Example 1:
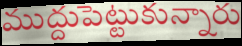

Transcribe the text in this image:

ముద్దుపెట్టుకున్నారు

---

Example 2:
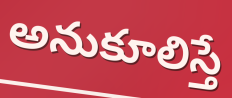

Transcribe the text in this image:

అనుకూలిస్తే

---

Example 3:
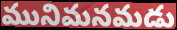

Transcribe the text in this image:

మునిమనమడు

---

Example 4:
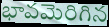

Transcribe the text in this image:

భావమెరిగిన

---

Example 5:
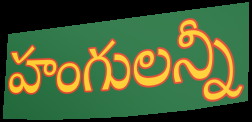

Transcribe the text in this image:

హంగులన్నీ